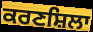
ਕਰਣਸ਼ਿਲਾ